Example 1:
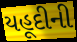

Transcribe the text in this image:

યહૂદીની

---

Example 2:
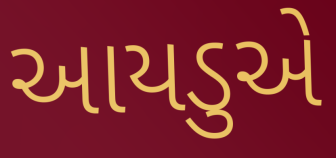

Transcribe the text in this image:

આયડુએ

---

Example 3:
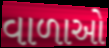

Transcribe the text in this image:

વાળાઓ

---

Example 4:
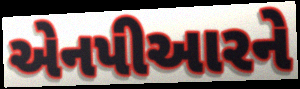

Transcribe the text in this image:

એનપીઆરને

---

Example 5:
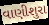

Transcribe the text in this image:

વાણીશુરા